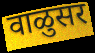
वाळुसर